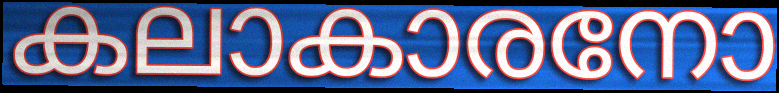
കലാകാരനോ